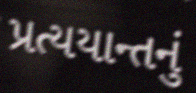
પ્રત્યયાન્તનું